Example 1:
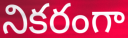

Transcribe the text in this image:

నికరంగా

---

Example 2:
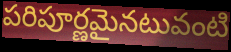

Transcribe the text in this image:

పరిపూర్ణమైనటువంటి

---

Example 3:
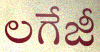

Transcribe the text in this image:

లగేజీ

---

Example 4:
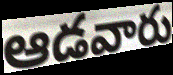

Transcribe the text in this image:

ఆడవారు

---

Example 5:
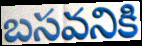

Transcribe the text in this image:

బసవనికి